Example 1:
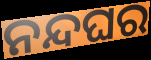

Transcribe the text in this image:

ନନ୍ଦଘର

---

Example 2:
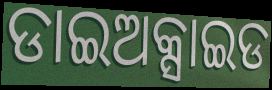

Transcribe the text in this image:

ଡାଇଅକ୍ସାଇଡ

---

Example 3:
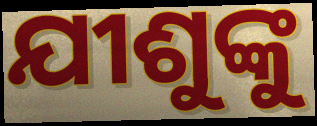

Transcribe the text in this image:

ଯୀଶୁଙ୍କୁ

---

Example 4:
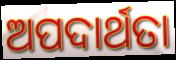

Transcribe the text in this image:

ଅପଦାର୍ଥତା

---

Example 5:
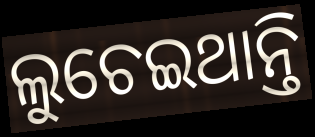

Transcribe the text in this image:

ଲୁଚେଇଥାନ୍ତି